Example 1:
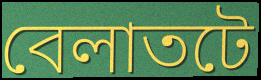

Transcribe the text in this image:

বেলাতটে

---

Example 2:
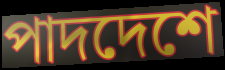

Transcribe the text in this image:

পাদদেশে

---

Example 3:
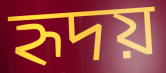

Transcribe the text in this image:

হৃদয়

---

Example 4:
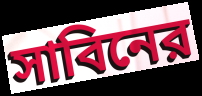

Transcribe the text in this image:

সাবিনের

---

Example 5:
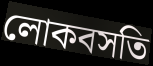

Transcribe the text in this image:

লোকবসতি